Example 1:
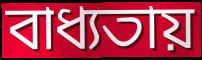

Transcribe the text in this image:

বাধ্যতায়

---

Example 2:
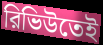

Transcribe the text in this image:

রিভিউতেই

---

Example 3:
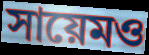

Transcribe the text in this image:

সায়েমও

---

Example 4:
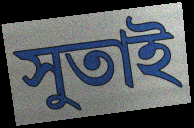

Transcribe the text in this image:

সুতাই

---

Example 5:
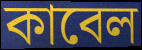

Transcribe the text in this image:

কাবেল